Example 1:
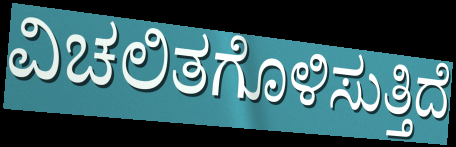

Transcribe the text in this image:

ವಿಚಲಿತಗೊಳಿಸುತ್ತಿದೆ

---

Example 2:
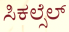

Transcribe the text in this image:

ಸಿಕಲ್ಸೆಲ್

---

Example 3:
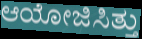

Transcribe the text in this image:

ಆಯೋಜಿಸಿತ್ತು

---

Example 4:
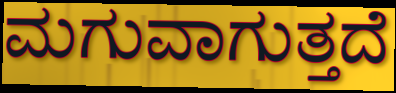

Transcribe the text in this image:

ಮಗುವಾಗುತ್ತದೆ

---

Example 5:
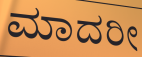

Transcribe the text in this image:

ಮಾದರೀ